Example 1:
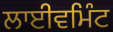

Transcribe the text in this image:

ਲਾਈਵਮਿੰਟ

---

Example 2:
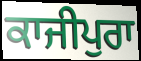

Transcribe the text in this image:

ਕਾਜੀਪੁਰਾ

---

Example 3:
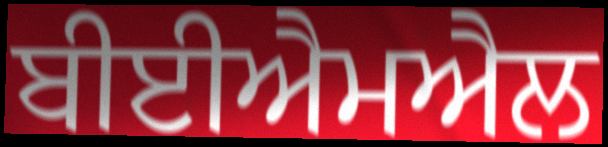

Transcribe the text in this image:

ਬੀਈਐਮਐਲ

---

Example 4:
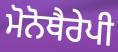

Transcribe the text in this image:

ਮੋਨੋਥੈਰੇਪੀ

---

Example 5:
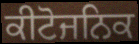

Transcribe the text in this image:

ਕੀਟੋਜਨਿਕ